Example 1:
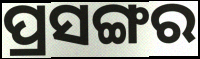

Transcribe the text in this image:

ପ୍ରସଙ୍ଗର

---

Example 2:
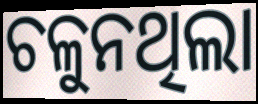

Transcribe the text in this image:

ଚଳୁନଥିଲା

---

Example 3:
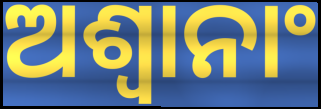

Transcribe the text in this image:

ଅଶ୍ଵାନାଂ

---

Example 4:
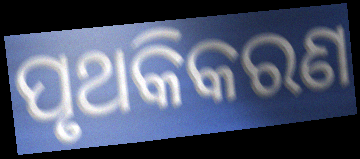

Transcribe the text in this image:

ପୃଥକିକରଣ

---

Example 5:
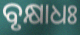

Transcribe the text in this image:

ବୃକ୍ଷାଧଃ